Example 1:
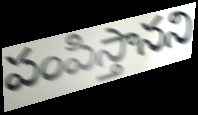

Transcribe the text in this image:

పంపిస్తానని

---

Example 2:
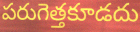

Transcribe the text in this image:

పరుగెత్తకూడదు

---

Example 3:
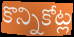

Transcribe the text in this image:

కొన్నికోట్ల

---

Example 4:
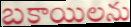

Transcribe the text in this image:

బకాయిలను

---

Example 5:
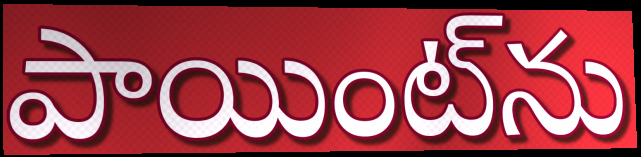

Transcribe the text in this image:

పాయింట్‌ను